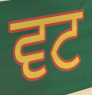
ਵਟ